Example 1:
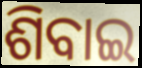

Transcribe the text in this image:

ଶିବାଇ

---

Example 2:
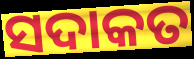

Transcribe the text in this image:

ସଦାକତ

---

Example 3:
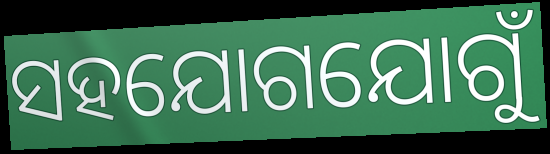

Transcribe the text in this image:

ସହଯୋଗଯୋଗୁଁ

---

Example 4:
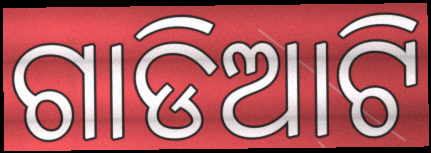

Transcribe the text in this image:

ଗାଡିଆଟି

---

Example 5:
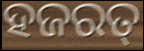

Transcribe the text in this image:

ହଜରତ୍